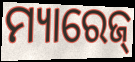
ମ୍ୟାରେଜ୍